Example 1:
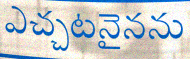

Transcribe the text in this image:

ఎచ్చటనైనను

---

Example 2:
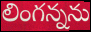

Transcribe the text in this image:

లింగన్నను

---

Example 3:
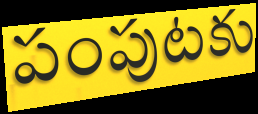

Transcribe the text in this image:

పంపుటకు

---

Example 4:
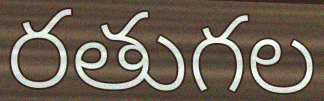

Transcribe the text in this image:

రతుగల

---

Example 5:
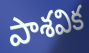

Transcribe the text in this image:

పాశవిక